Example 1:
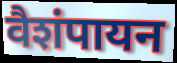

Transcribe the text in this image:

वैशंपायन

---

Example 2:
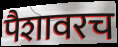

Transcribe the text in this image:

पैशावरच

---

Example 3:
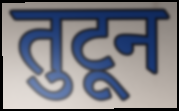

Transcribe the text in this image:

तुटून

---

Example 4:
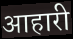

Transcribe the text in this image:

आहारी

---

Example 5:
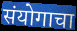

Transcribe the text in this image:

संयोगाचा